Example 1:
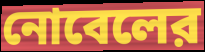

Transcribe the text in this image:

নোবেলের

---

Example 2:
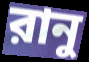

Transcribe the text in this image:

রানু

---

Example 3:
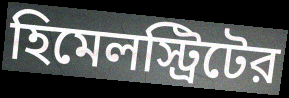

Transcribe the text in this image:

হিমেলস্ট্রিটের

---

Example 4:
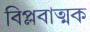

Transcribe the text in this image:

বিপ্লবাত্মক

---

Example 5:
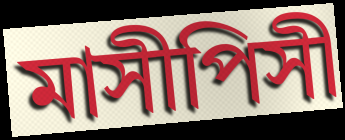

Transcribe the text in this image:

মাসীপিসী